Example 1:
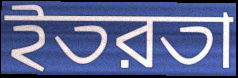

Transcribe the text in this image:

ইতরতা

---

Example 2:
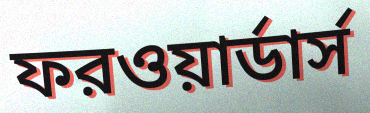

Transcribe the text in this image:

ফরওয়ার্ডার্স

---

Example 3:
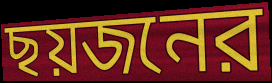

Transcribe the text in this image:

ছয়জনের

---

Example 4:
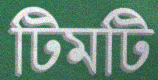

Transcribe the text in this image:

টিমটি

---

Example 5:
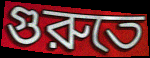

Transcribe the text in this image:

গুরুতে